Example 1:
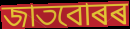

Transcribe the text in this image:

জাতবোৰৰ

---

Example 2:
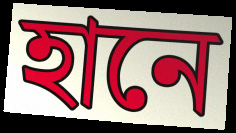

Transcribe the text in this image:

হানে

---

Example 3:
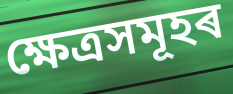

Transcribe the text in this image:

ক্ষেত্ৰসমূহৰ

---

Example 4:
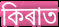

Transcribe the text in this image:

কিৰাত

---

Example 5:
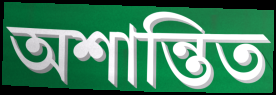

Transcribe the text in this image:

অশান্তিত